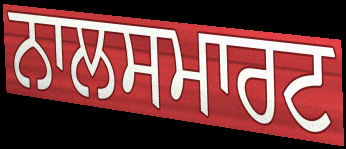
ਨਾਲਸਮਾਰਟ